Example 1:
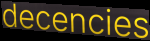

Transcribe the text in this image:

decencies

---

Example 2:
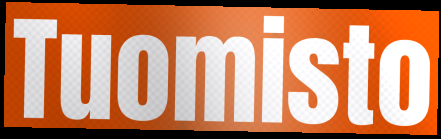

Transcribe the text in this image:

Tuomisto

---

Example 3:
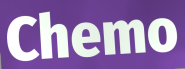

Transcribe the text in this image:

Chemo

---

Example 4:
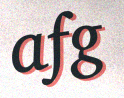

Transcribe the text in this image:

afg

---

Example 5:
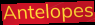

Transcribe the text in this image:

Antelopes